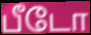
பீடோ